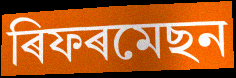
ৰিফৰমেছন